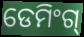
ଡେମିଂଗ୍